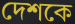
দেশকে